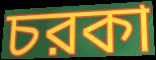
চরকা